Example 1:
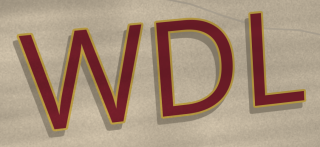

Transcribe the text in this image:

WDL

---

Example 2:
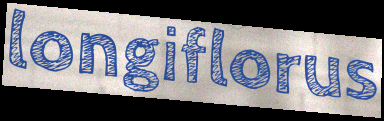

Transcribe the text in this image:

longiflorus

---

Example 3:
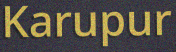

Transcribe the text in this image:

Karupur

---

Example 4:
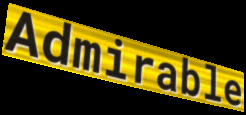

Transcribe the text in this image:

Admirable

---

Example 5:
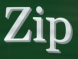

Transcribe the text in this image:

Zip